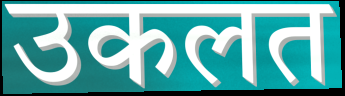
उकलत